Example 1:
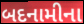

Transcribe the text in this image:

બદનામીના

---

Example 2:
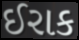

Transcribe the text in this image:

ઈરાક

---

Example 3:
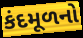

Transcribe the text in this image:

કંદમૂળનો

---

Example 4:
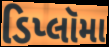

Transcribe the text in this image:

ડિપ્લૉમા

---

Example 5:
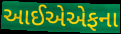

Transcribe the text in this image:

આઈએએફના